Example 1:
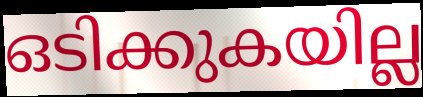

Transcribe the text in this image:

ഒടിക്കുകയില്ല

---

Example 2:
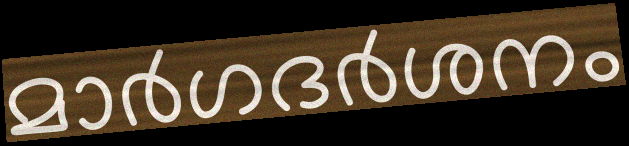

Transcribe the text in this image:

മാർഗദർശനം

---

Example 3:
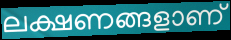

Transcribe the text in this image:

ലക്ഷണങ്ങളാണ്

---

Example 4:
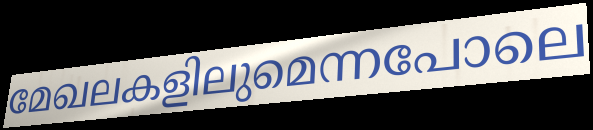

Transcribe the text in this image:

മേഖലകളിലുമെന്നപോലെ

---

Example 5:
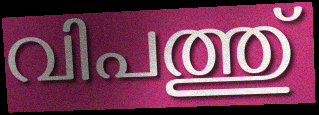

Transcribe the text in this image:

വിപത്തു്